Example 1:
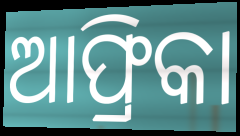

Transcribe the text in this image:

ଆଫ୍ରିକା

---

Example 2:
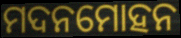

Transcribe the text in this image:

ମଦନମୋହନ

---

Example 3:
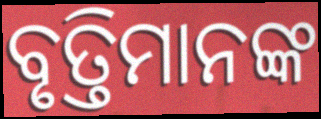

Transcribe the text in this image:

ବୃତ୍ତିମାନଙ୍କ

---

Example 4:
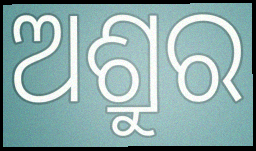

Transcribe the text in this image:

ଅଶ୍ରୁର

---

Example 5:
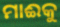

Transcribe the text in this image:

ମାଈକୁ